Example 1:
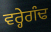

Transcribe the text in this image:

ਵਰ੍ਹੇਗੰਢ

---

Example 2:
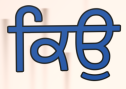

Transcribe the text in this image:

ਕਿਉ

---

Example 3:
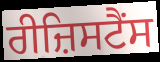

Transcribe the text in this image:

ਰੀਜ਼ਿਸਟੈਂਸ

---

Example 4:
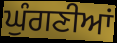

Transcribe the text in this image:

ਘੁੰਗਣੀਆਂ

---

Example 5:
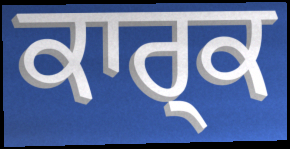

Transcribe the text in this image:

ਕਾਰ੍ਕ